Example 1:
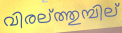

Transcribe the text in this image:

വിരല്ത്തുമ്പില്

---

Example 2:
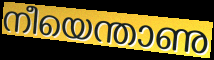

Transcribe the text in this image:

നീയെന്താണു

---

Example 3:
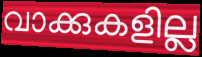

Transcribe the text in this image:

വാക്കുകളില്ല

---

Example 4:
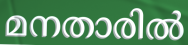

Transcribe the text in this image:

മനതാരിൽ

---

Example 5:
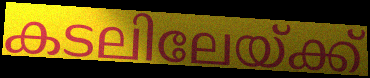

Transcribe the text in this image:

കടലിലേയ്ക്ക്